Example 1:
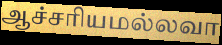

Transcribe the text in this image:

ஆச்சரியமல்லவா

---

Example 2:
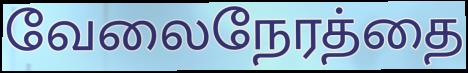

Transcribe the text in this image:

வேலைநேரத்தை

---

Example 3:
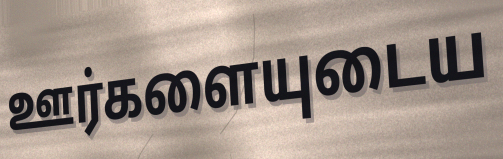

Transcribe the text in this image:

ஊர்களையுடைய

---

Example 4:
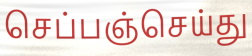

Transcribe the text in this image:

செப்பஞ்செய்து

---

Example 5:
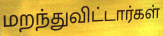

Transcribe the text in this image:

மறந்துவிட்டார்கள்